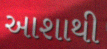
આશાથી